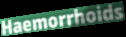
Haemorrhoids